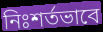
নিঃশর্তভাবে